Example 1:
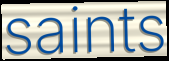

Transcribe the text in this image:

saints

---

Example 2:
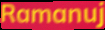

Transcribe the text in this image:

Ramanuj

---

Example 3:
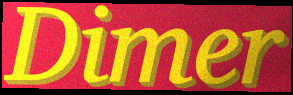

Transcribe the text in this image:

Dimer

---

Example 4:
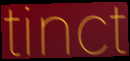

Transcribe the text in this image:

tinct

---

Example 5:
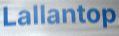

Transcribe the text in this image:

Lallantop